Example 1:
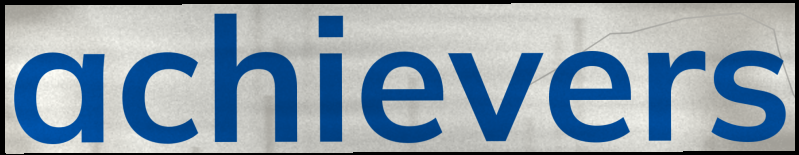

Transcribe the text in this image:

achievers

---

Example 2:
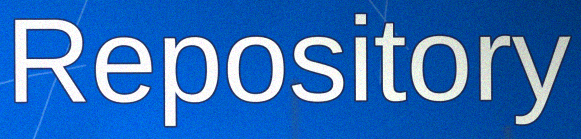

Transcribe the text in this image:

Repository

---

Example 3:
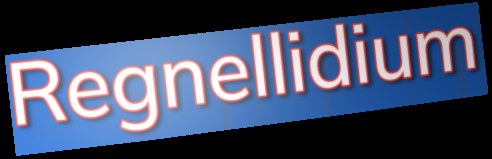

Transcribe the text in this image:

Regnellidium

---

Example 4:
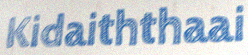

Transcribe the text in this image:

Kidaiththaai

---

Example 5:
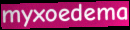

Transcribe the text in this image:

myxoedema